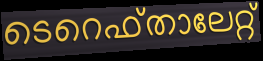
ടെറെഫ്താലേറ്റ്